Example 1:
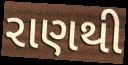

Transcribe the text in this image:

રાણથી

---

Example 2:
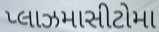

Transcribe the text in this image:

પ્લાઝમાસીટોમા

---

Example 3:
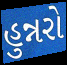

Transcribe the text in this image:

હુન્નરો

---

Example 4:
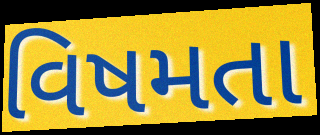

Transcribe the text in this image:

વિષમતા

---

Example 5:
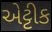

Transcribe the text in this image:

એટ્ટીક